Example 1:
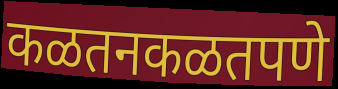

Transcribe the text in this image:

कळतनकळतपणे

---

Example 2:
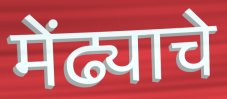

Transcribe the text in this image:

मेंढ्याचे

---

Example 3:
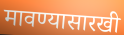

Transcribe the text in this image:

मावण्यासारखी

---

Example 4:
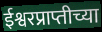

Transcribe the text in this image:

ईश्वरप्राप्तीच्या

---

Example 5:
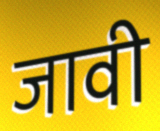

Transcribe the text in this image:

जावी